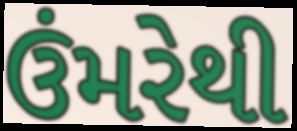
ઉંમરેથી